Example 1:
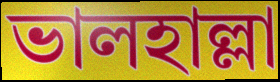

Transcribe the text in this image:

ভালহাল্লা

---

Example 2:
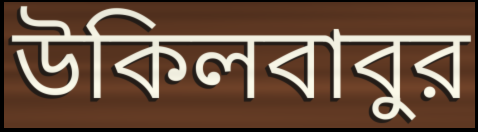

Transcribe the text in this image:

উকিলবাবুর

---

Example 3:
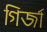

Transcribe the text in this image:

গির্জা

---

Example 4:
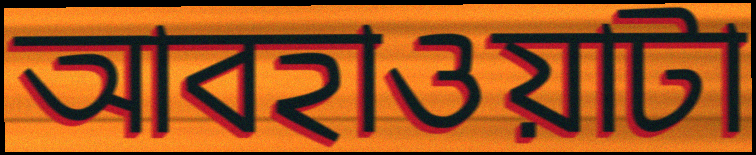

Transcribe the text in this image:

আবহাওয়াটা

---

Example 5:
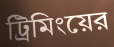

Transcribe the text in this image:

ট্রিমিংয়ের